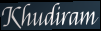
Khudiram